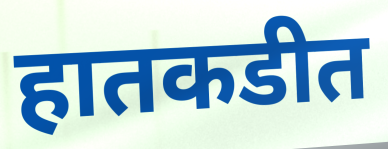
हातकडीत